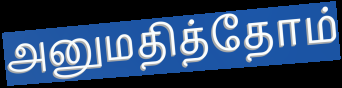
அனுமதித்தோம்